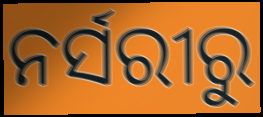
ନର୍ସରୀରୁ